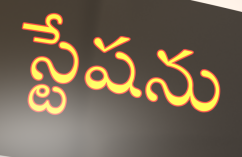
స్టేషను